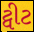
ટ્વીટ